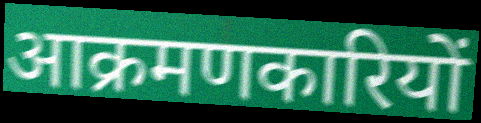
आक्रमणकारियों